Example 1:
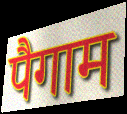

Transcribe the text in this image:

पैगाम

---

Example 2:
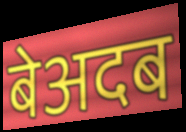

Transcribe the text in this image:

बेअदब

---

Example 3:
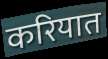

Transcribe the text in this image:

करियात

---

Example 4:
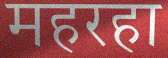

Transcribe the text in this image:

महरहा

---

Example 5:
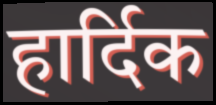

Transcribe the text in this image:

हार्दिक